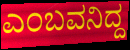
ಎಂಬವನಿದ್ದ